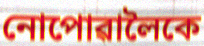
নোপোৱালৈকে